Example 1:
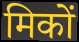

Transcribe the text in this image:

मिकों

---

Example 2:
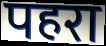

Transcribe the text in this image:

पहरा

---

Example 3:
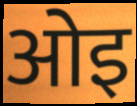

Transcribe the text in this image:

ओइ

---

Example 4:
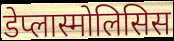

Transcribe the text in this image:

डेप्लास्मोलिसिस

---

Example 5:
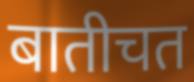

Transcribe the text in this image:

बातीचत